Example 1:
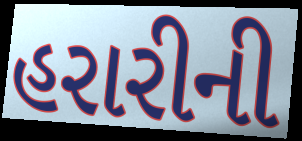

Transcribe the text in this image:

હરારીની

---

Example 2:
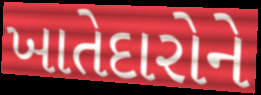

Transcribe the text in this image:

ખાતેદારોને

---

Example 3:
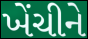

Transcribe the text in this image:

ખેંચીને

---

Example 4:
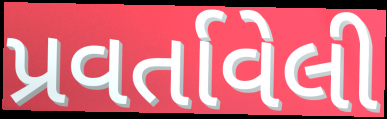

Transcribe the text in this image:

પ્રવર્તાવેલી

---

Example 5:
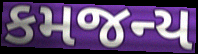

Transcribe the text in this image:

કમજન્ય